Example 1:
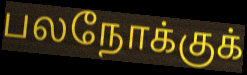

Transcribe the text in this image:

பலநோக்குக்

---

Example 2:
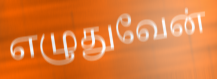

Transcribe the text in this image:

எழுதுவேன்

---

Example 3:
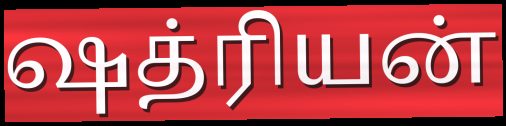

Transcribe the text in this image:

ஷத்ரியன்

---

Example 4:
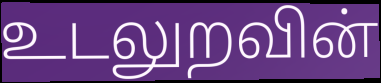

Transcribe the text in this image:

உடலுறவின்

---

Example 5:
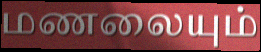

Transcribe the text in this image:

மணலையும்